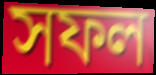
সফল